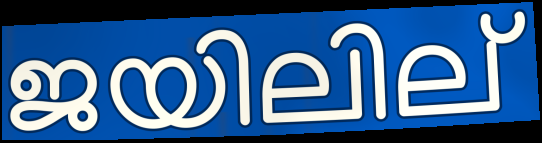
ജയിലില്